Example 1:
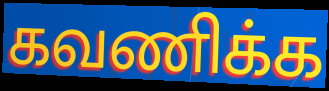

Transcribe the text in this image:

கவணிக்க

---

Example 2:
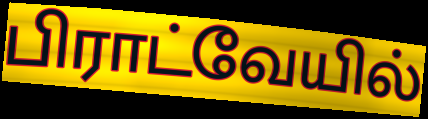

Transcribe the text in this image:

பிராட்வேயில்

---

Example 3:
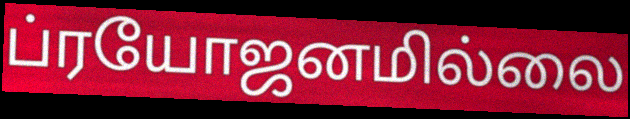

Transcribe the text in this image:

ப்ரயோஜனமில்லை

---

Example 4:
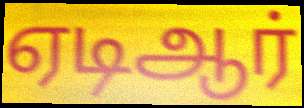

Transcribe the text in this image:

ஏடிஆர்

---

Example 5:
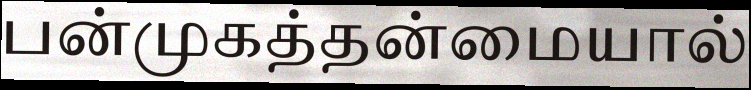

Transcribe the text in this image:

பன்முகத்தன்மையால்